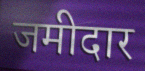
जमीदार